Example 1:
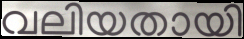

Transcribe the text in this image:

വലിയതായി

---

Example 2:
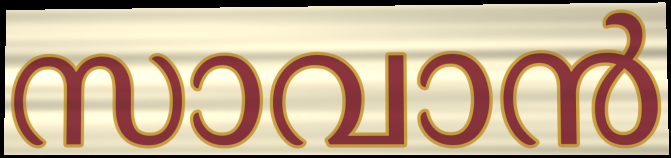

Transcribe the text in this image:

സാവാൻ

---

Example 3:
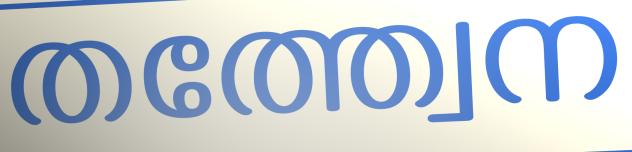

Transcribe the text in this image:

തത്ത്വേന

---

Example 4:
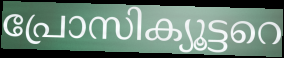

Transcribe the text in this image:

പ്രോസിക്യൂട്ടറെ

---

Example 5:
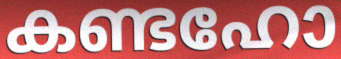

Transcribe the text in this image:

കണ്ടഹോ